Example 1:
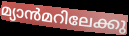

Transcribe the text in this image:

മ്യാൻമറിലേക്കു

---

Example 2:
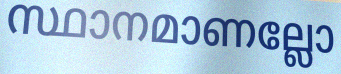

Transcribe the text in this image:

സ്ഥാനമാണല്ലോ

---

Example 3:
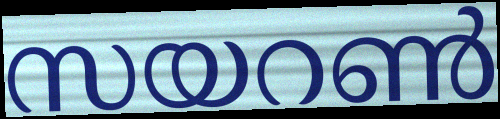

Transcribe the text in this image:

സയറൺ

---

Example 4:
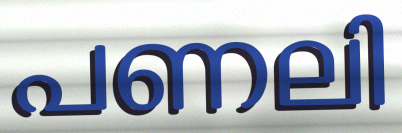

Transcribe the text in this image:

പണലി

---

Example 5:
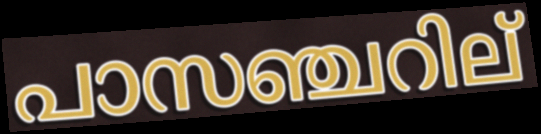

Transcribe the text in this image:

പാസഞ്ചറില്